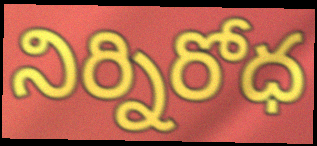
నిర్నిరోధ